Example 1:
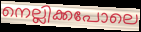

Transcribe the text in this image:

നെല്ലിക്കപോലെ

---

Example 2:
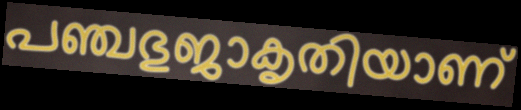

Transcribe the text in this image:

പഞ്ചഭുജാകൃതിയാണ്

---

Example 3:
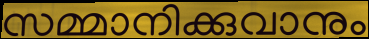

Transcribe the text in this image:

സമ്മാനിക്കുവാനും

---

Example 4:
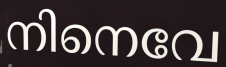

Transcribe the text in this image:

നിനെവേ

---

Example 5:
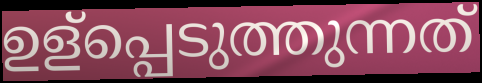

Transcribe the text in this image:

ഉള്പ്പെടുത്തുന്നത്